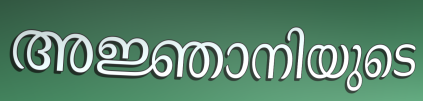
അജ്ഞാനിയുടെ